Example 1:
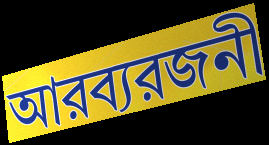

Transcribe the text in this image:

আরব্যরজনী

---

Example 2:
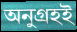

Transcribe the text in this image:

অনুগ্রহই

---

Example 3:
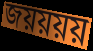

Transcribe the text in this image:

জয়য়য়য়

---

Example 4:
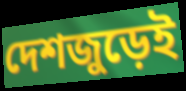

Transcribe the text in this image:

দেশজুড়েই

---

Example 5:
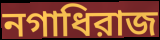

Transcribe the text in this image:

নগাধিরাজ